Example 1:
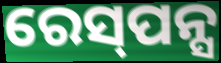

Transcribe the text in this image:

ରେସ୍‌ପନ୍ସ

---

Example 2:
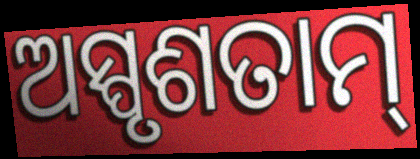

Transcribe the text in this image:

ଅସ୍ପୃଶତାମ୍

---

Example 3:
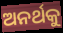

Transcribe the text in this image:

ଅନର୍ଥକୁ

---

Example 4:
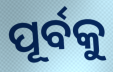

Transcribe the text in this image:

ପୂର୍ବକୁ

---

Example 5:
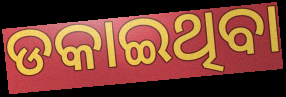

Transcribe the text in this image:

ଡକାଇଥିବା